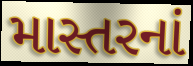
માસ્તરનાં